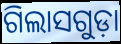
ଗିଲାସଗୁଡ଼ା